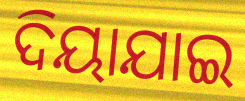
ଦିୟାଯାଇ